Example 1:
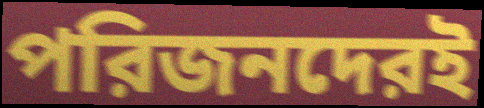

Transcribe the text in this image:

পরিজনদেরই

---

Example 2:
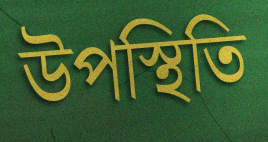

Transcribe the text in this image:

উপস্থিতি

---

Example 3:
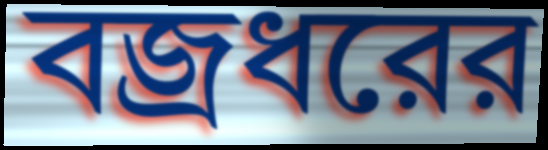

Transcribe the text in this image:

বজ্রধরের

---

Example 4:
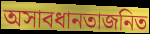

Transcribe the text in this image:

অসাবধানতাজনিত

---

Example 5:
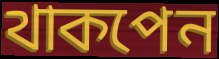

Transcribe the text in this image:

থাকপেন